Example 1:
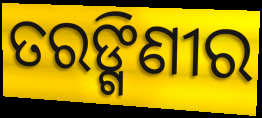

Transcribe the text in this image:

ତରଙ୍ଗିଣୀର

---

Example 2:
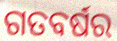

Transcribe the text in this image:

ଗତବର୍ଷର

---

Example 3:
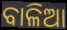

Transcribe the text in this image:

ବାଳିଆ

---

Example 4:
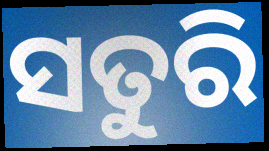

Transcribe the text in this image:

ସତୁରି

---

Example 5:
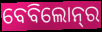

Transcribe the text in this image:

ବେବିଲୋନ୍‌ର